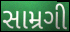
સામ્રગી